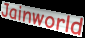
Jainworld